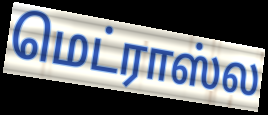
மெட்ராஸ்ல